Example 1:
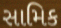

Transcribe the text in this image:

સામિક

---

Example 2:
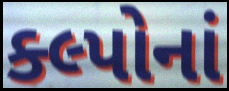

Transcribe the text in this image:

ક્લ્પોનાં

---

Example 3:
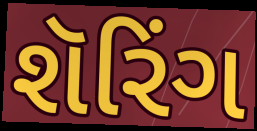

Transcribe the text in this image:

શૅરિંગ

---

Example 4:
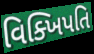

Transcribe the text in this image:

વિક્ખિપતિ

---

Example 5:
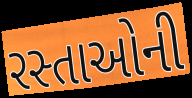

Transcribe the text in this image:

રસ્તાઓની